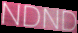
NDND